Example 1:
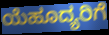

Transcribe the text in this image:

ಯೆಹೂದ್ಯರಿಗೆ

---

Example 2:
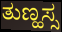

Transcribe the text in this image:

ತುಣ್ಹಸ್ಸ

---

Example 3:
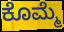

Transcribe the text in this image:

ಕೊಮ್ಮೆ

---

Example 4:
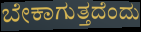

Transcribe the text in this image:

ಬೇಕಾಗುತ್ತದೆಂದು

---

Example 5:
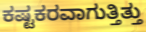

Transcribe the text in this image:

ಕಷ್ಟಕರವಾಗುತ್ತಿತ್ತು